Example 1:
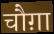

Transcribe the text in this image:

चौग़ा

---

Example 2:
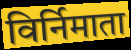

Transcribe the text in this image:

विर्निमाता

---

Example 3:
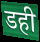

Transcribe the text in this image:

डही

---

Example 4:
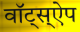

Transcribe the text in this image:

वॉट्स्ऐप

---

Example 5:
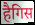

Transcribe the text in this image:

हैगिस